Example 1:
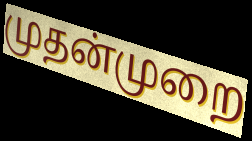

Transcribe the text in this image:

முதன்முறை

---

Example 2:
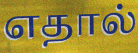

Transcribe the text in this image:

எதால்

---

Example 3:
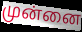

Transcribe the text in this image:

முன்னை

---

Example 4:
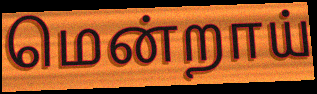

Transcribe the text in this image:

மென்றாய்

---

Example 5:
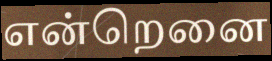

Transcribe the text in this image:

என்றெனை